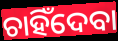
ଚାହିଁଦେବା